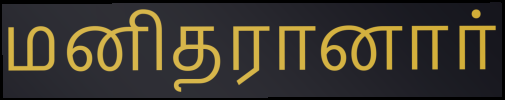
மனிதரானார்